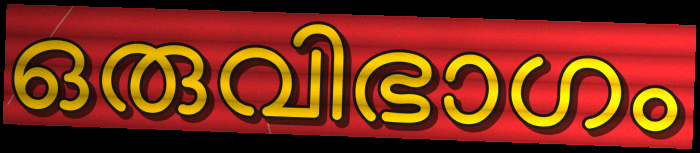
ഒരുവിഭാഗം